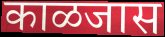
काळजास